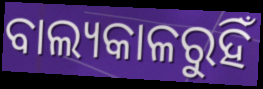
ବାଲ୍ୟକାଳରୁହିଁ